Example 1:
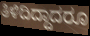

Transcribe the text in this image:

ತಿಳಿದಿದ್ದಾದರೂ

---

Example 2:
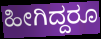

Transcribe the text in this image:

ಹೀಗಿದ್ದರೂ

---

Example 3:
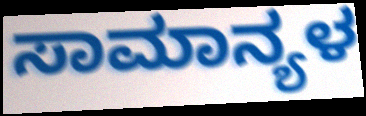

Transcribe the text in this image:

ಸಾಮಾನ್ಯಳ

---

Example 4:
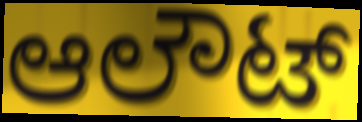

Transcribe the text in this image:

ಆಲೌಟ್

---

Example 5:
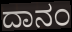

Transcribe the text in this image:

ದಾನಂ